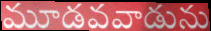
మూడవవాడును